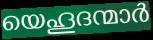
യെഹൂദന്മാർ